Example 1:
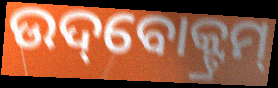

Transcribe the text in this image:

ଉଦ୍‌ବୋକ୍ଟ୍ରମ୍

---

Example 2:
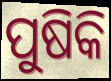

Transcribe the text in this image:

ପୁଷିକି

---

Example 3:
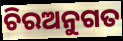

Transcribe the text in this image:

ଚିରଅନୁଗତ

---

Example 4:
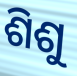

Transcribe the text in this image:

ଶିଶୁ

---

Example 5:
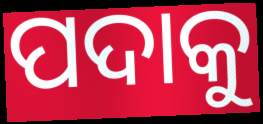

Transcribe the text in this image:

ପଦାକୁ